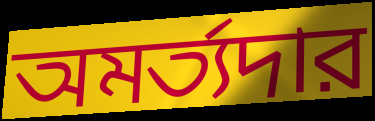
অমর্ত্যদার